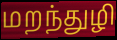
மறந்துழி